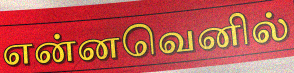
என்னவெனில்